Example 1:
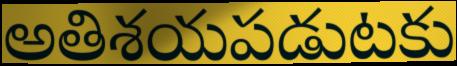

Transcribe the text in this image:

అతిశయపడుటకు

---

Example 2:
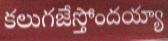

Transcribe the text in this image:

కలుగజేస్తోందయ్యా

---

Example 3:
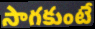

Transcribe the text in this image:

సాగకుంటే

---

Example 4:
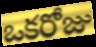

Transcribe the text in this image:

ఒకరోజు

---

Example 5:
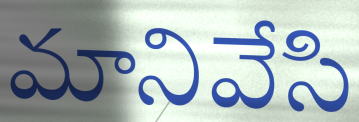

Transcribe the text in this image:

మానివేసి